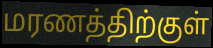
மரணத்திற்குள்